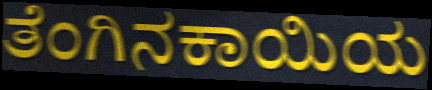
ತೆಂಗಿನಕಾಯಿಯ